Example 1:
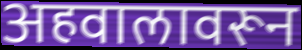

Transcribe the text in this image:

अहवालावरून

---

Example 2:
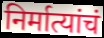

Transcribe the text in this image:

निर्मात्यांचं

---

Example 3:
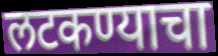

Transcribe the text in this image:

लटकण्याचा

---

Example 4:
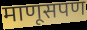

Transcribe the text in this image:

माणूसपण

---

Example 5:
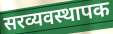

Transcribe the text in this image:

सरव्यवस्थापक